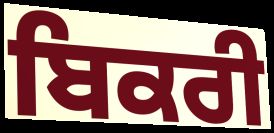
ਬਿਕਰੀ